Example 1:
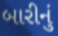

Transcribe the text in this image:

બારીનું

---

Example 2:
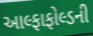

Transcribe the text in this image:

આલ્ફાફોલ્ડની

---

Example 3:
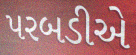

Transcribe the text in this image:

પરબડીએ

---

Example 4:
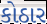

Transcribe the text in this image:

કોઠાર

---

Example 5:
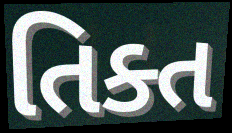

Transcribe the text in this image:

તિક્ત